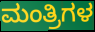
ಮಂತ್ರಿಗಳ